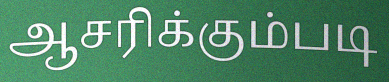
ஆசரிக்கும்படி